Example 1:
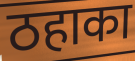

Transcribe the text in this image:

ठहाका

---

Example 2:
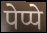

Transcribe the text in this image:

पेप्पे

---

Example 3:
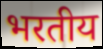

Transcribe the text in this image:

भरतीय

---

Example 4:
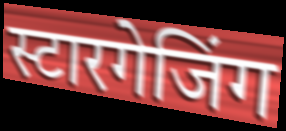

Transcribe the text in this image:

स्टारगेजिंग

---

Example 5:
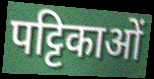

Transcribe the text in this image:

पट्टिकाओं